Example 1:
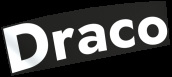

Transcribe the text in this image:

Draco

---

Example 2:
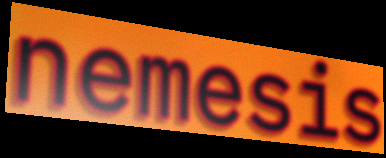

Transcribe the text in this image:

nemesis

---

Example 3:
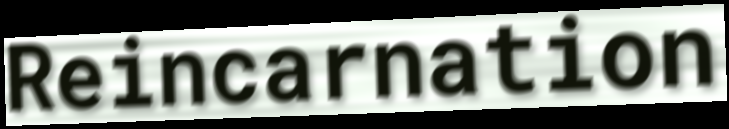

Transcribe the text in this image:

Reincarnation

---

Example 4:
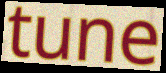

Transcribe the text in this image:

tune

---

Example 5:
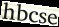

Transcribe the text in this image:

hbcse